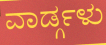
ವಾರ್ಡ್ಗಳು